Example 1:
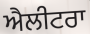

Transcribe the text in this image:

ਐਲੀਟਰਾ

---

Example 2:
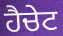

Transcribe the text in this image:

ਹੈਚੇਟ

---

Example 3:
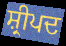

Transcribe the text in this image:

ਸ਼੍ਰੀਪਦ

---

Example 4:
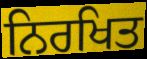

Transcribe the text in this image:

ਨਿਰਖਿਤ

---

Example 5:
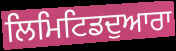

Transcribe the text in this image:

ਲਿਮਿਟਿਡਦੁਆਰਾ